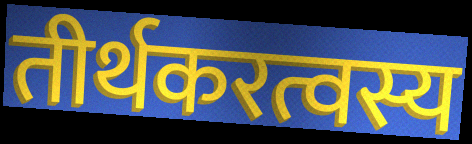
तीर्थकरत्वस्य